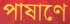
পাষাণে